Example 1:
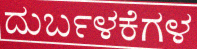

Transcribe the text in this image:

ದುರ್ಬಳಕೆಗಳ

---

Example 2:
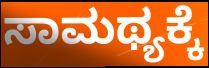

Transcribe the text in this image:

ಸಾಮಥ್ಯಕ್ಕೆ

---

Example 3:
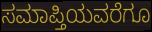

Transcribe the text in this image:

ಸಮಾಪ್ತಿಯವರೆಗೂ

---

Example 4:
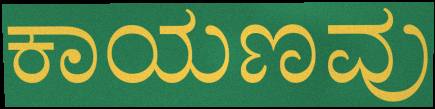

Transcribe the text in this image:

ಕಾಯಣವು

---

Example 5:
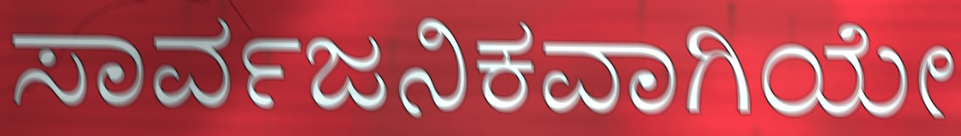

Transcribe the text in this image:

ಸಾರ್ವಜನಿಕವಾಗಿಯೇ